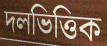
দলভিত্তিক